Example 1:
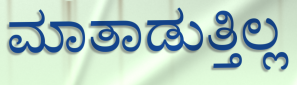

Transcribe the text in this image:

ಮಾತಾಡುತ್ತಿಲ್ಲ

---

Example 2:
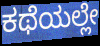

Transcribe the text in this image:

ಕಥೆಯಲ್ಲೇ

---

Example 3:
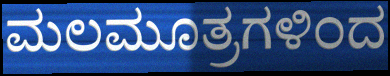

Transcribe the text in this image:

ಮಲಮೂತ್ರಗಳಿಂದ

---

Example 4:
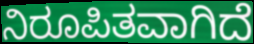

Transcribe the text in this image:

ನಿರೂಪಿತವಾಗಿದೆ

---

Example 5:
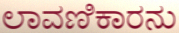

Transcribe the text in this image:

ಲಾವಣಿಕಾರನು